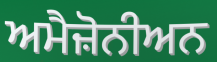
ਅਮੈਜ਼ੋਨੀਅਨ